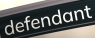
defendant